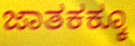
ಜಾತಕಕ್ಕೂ